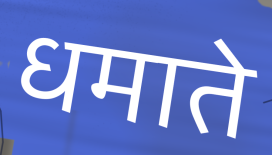
धमाते